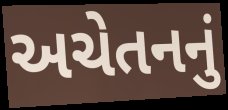
અચેતનનું